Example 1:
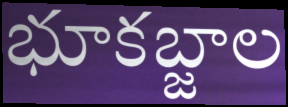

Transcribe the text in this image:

భూకబ్జాల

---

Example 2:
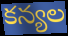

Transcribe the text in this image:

కన్యల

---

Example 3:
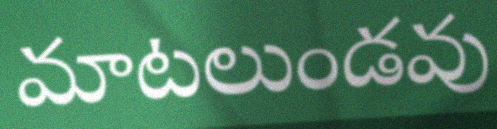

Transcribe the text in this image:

మాటలుండవు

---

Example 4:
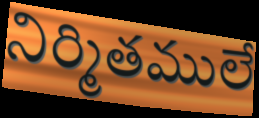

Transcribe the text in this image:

నిర్మితములే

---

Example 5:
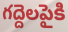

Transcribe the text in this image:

గద్దెలపైకి